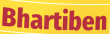
Bhartiben